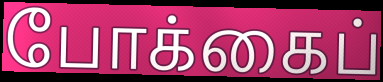
போக்கைப்